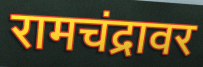
रामचंद्रावर